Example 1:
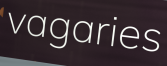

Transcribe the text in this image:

vagaries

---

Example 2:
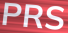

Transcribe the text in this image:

PRS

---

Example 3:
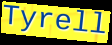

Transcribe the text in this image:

Tyrell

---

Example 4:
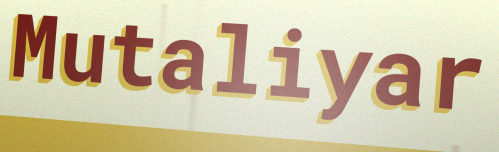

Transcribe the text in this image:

Mutaliyar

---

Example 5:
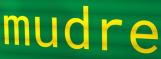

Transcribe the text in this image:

mudre